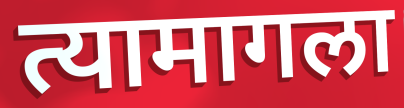
त्यामागला